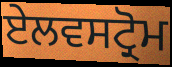
ਏਲਵਸਟ੍ਰੋਮ